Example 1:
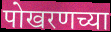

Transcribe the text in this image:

पोखरणच्या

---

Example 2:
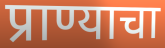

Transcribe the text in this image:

प्राण्याचा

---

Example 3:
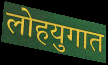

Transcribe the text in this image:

लोहयुगात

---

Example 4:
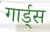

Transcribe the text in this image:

गार्ड्स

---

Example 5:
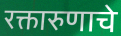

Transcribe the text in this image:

रक्तारुणाचे